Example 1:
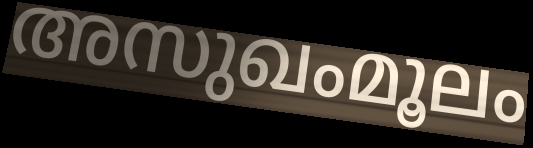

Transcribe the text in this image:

അസുഖംമൂലം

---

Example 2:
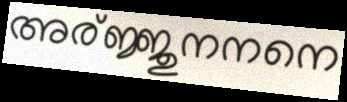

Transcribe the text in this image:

അര്ജ്ജുനനനെ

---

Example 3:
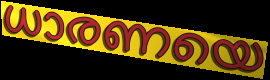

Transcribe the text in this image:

ധാരണയെ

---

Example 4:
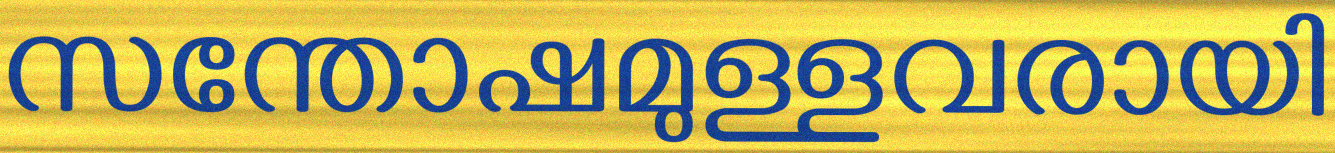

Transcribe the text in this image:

സന്തോഷമുള്ളവരായി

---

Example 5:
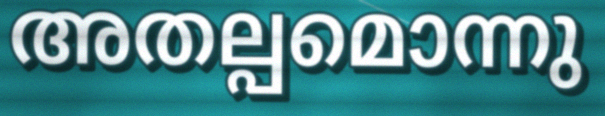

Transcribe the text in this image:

അതല്പമൊന്നു